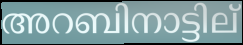
അറബിനാട്ടില്